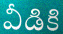
వీడికి